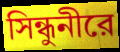
সিন্ধুনীরে